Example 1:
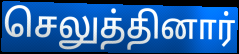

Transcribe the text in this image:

செலுத்தினார்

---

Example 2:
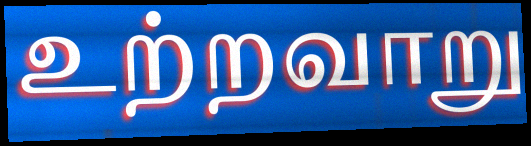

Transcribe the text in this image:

உற்றவாறு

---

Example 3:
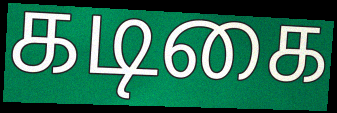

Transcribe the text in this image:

கடிகை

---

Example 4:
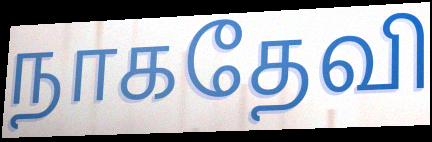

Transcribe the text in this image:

நாகதேவி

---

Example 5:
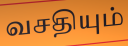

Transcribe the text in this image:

வசதியும்